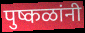
पुष्कळांनी